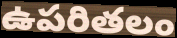
ఉపరితలం